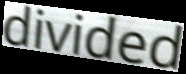
divided